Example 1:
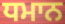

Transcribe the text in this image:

ਧਮਾਨ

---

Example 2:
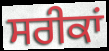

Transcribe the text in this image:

ਸਰੀਕਾਂ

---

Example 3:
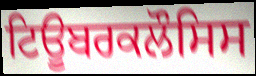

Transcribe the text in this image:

ਟਿਊਬਰਕਲੌਸਿਸ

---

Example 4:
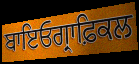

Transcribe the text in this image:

ਬਾਇਓਗ੍ਰਾਫ਼ਿਕਲ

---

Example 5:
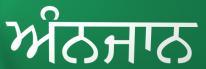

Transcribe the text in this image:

ਅੰਨਜਾਨ